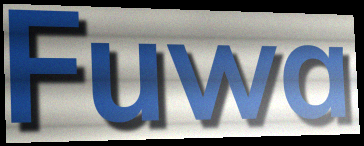
Fuwa